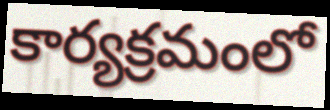
కార్యక్రమంలో